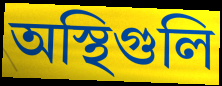
অস্থিগুলি